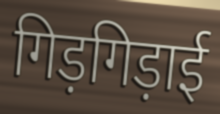
गिड़गिड़ाई